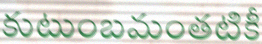
కుటుంబమంతటికీ